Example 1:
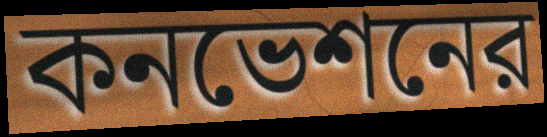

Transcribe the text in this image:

কনভেশনের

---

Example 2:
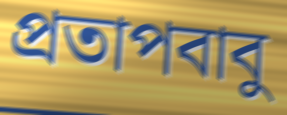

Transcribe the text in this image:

প্রতাপবাবু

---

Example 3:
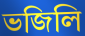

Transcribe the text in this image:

ভজিলি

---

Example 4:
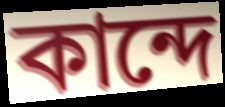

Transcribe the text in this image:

কান্দে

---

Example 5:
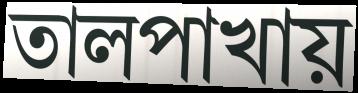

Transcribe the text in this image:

তালপাখায়